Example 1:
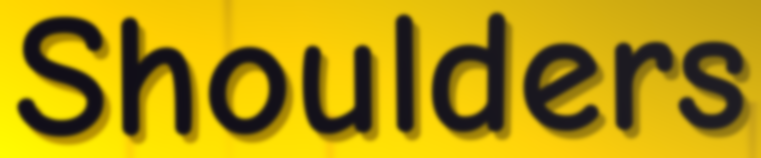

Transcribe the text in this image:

Shoulders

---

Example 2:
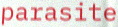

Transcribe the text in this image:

parasite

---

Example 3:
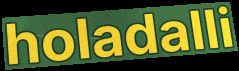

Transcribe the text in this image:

holadalli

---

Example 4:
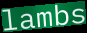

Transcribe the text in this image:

lambs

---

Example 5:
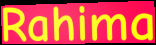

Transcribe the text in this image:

Rahima